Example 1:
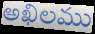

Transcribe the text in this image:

అఖిలము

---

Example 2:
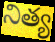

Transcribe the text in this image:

నిత్య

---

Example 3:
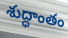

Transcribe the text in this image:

శుద్ధాంతం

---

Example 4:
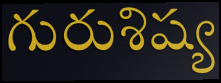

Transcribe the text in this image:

గురుశిష్య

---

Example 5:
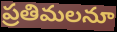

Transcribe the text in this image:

ప్రతిమలనూ